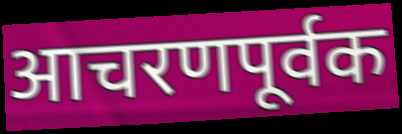
आचरणपूर्वक